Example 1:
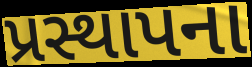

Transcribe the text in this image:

પ્રસ્થાપના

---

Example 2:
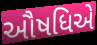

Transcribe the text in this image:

ઔષધિએ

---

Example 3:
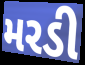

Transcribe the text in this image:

મરડી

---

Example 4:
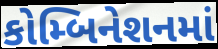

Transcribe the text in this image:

કોમ્બિનેશનમાં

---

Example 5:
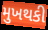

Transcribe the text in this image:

મુખથકી